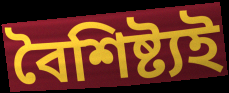
বৈশিষ্ট্যই